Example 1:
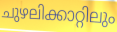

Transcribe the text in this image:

ചുഴലിക്കാറ്റിലും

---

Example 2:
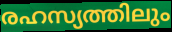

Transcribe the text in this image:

രഹസ്യത്തിലും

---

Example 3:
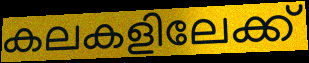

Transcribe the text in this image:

കലകളിലേക്ക്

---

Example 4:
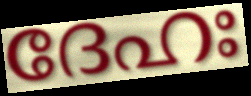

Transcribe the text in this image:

ദേഹഃ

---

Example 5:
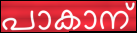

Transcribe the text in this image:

പാകാന്